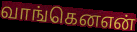
வாங்கெனஎன்